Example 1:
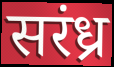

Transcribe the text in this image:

सरंध्र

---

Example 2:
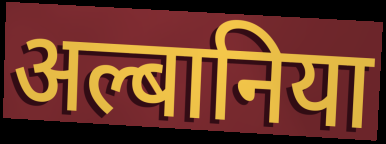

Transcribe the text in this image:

अल्बानिया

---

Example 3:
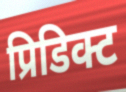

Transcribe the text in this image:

प्रिडिक्ट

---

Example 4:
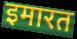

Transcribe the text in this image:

इमारत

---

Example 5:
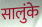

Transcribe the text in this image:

सालुंके